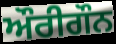
ਔਰੀਗੌਨ